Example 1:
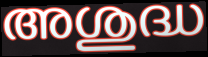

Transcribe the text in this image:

അശുദ്ധ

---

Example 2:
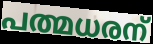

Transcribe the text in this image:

പത്മധരന്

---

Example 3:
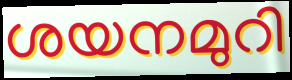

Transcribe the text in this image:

ശയനമുറി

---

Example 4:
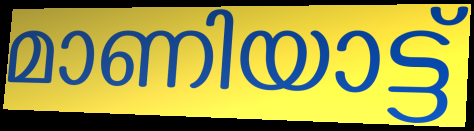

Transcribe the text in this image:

മാണിയാട്ട്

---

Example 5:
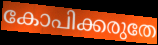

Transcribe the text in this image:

കോപിക്കരുതേ